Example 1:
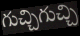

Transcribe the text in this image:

గుచ్చిగుచ్చి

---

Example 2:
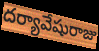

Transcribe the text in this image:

దర్యావేషురాజు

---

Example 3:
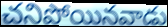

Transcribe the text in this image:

చనిపోయినవాడు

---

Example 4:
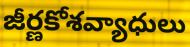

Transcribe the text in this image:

జీర్ణకోశవ్యాధులు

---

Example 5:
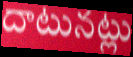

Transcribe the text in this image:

దాటునట్లు